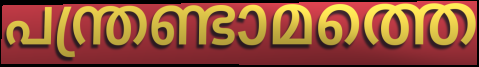
പന്ത്രണ്ടാമത്തെ